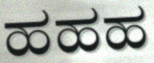
ಹಹಹ